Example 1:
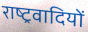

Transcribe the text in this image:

राष्ट्रवादियों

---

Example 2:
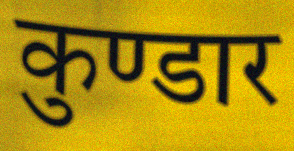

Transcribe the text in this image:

कुण्डार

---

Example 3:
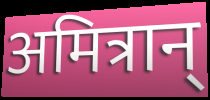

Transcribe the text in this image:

अमित्रान्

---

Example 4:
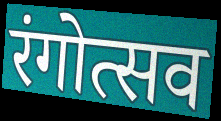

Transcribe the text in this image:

रंगोत्सव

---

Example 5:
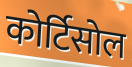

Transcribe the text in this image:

कोर्टिसोल